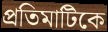
প্রতিমাটিকে